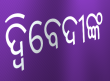
ଦ୍ବିବେଦୀଙ୍କ